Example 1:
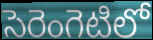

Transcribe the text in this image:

సెరెంగెటిలో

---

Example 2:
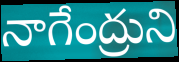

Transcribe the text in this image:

నాగేంద్రుని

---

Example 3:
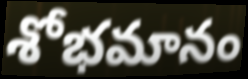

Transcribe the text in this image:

శోభమానం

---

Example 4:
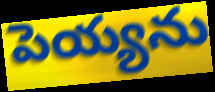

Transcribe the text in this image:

పెయ్యను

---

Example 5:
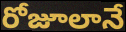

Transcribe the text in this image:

రోజూలానే